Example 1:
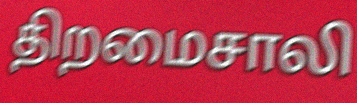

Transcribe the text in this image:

திறமைசாலி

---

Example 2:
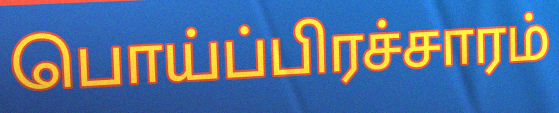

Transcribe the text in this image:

பொய்ப்பிரச்சாரம்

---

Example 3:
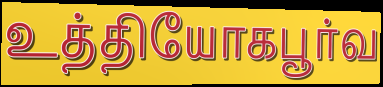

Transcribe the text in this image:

உத்தியோகபூர்வ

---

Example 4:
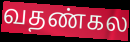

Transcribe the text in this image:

வதண்கல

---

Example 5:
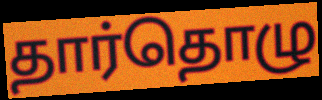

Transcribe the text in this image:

தார்தொழு